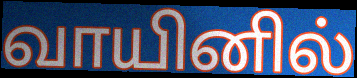
வாயினில்